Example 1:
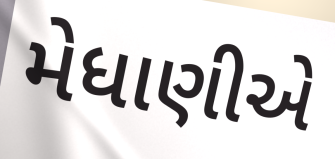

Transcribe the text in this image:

મેધાણીએ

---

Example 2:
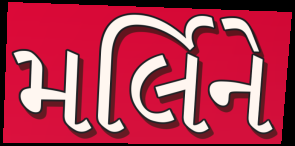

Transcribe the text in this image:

મર્લિને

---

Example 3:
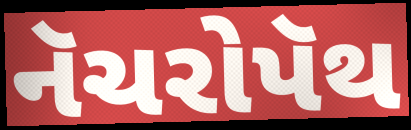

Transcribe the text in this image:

નૅચરોપૅથ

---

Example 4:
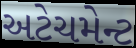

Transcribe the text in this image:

અટેચમેન્ટ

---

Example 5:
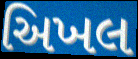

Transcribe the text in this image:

અિખલ